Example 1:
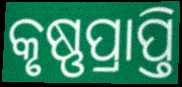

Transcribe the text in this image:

କୃଷ୍ଣପ୍ରାପ୍ତି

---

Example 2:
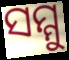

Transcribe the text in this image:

ସମ୍ମୁ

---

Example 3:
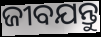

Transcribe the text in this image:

ଜୀବଯନ୍ତୁ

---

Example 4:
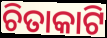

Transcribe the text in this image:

ଚିତାକାଟି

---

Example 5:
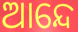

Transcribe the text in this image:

ଆନ୍ଦେ